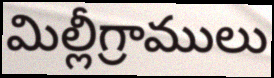
మిల్లీగ్రాములు